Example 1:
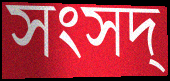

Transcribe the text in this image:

সংসদ্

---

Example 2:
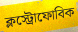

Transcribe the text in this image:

ক্লস্ট্রোফোবিক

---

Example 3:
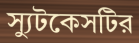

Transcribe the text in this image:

স্যুটকেসটির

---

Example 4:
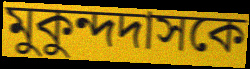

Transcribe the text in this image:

মুকুন্দদাসকে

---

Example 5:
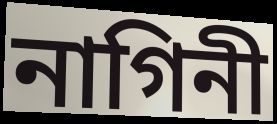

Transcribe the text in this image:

নাগিনী